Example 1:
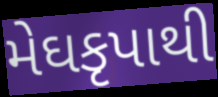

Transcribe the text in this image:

મેઘકૃપાથી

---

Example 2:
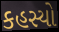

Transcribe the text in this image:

કહસ્યો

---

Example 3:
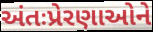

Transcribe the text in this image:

અંતઃપ્રેરણાઓને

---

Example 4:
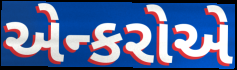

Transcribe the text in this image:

એન્કરોએ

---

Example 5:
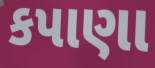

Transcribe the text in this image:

કપાણા